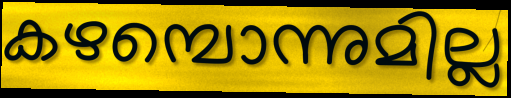
കഴമ്പൊന്നുമില്ല